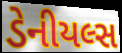
ડેનીયલ્સ